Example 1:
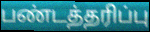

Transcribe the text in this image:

பண்டத்தரிப்பு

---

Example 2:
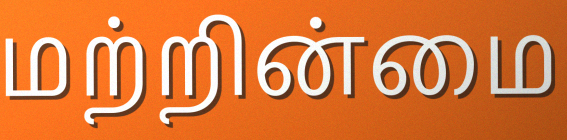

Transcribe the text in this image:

மற்றின்மை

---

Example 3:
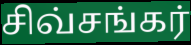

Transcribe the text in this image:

சிவ்சங்கர்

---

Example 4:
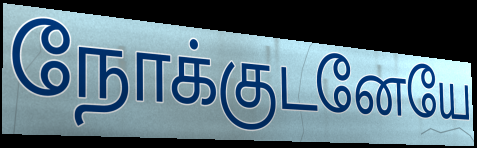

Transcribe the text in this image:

நோக்குடனேயே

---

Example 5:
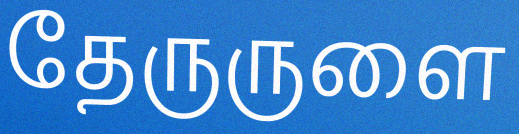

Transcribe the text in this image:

தேருருளை